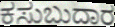
ಕಸುಬುದಾರ